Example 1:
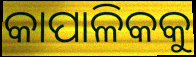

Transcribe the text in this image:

କାପାଳିକକୁ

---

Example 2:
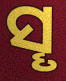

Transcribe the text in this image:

ସୄ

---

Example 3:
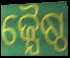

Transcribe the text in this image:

ଜ୍ଯୈଷ୍ଠ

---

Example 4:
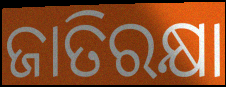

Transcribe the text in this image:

ଜାତିରକ୍ଷା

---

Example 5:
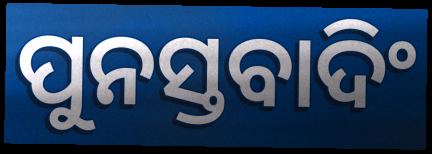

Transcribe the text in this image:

ପୁନସ୍ତବାଦିଂ